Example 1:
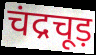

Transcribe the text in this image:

चंद्रचूड़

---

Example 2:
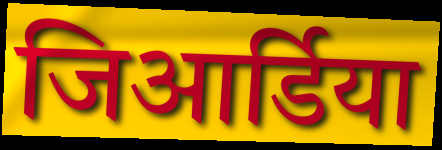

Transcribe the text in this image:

जिआर्डिया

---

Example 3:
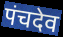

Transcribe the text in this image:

पंचदेव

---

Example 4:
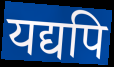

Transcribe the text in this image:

यद्यपि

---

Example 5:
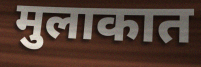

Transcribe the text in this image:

मुलाकात